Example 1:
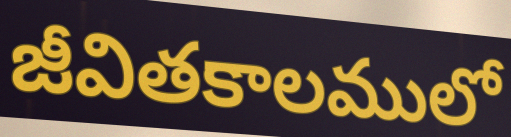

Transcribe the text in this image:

జీవితకాలములో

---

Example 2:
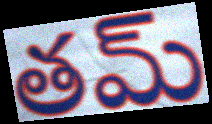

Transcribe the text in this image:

తమ్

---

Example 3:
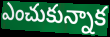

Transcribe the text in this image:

ఎంచుకున్నాక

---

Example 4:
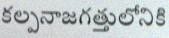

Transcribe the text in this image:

కల్పనాజగత్తులోనికి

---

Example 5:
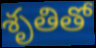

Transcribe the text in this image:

శృతితో